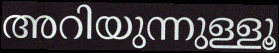
അറിയുന്നുള്ളൂ